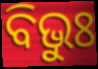
ବିଭୁଃ